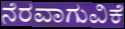
ನೆರವಾಗುವಿಕೆ